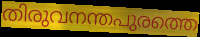
തിരുവനന്തപുരത്തെ